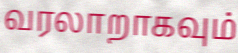
வரலாறாகவும்